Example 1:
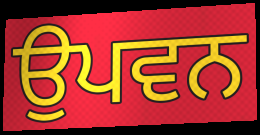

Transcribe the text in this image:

ਉਪਵਨ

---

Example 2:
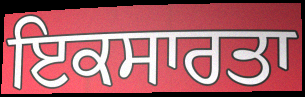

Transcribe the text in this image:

ਇਕਸਾਰਤਾ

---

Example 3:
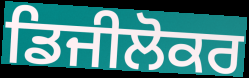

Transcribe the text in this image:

ਡਿਜੀਲੋਕਰ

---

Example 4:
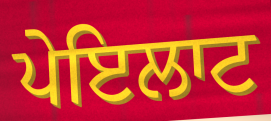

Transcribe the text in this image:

ਪੇਇਲਾਟ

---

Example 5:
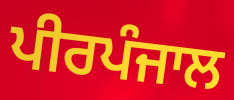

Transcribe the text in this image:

ਪੀਰਪੰਜਾਲ